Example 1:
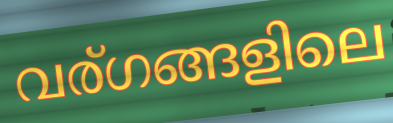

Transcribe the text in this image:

വര്ഗങ്ങളിലെ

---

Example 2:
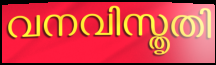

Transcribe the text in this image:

വനവിസ്തൃതി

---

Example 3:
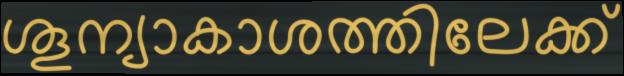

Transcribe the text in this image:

ശൂന്യാകാശത്തിലേക്ക്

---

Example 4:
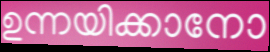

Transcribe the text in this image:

ഉന്നയിക്കാനോ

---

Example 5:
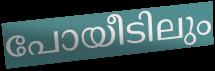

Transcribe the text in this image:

പോയീടിലും